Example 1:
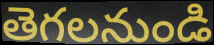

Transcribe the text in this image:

తెగలనుండి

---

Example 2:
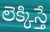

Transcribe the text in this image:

లెక్కిస్తే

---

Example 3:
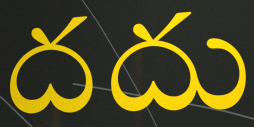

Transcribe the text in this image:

దదు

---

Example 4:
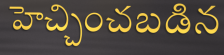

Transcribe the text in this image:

హెచ్చించబడిన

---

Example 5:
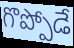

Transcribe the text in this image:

గొప్పోడే